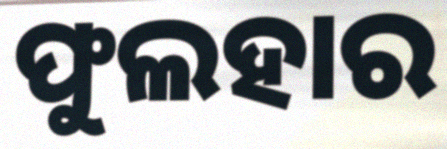
ଫୁଲହାର